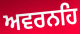
ਅਵਰਨਹਿ